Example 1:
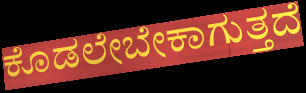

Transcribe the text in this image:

ಕೊಡಲೇಬೇಕಾಗುತ್ತದೆ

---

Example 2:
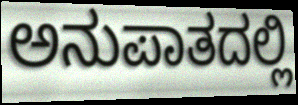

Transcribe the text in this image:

ಅನುಪಾತದಲ್ಲಿ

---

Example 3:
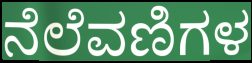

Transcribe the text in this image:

ನೆಲೆವಣಿಗಳ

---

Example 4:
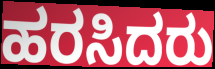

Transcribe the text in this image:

ಹರಸಿದರು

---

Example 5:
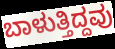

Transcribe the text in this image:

ಬಾಳುತ್ತಿದ್ದವು